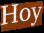
Hoy